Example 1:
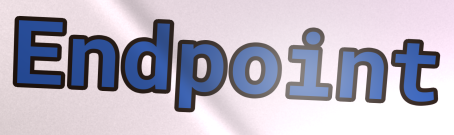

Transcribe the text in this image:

Endpoint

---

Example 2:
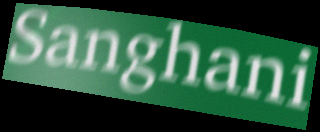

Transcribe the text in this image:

Sanghani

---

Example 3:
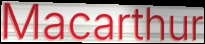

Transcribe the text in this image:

Macarthur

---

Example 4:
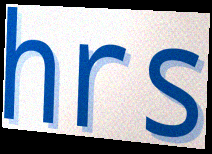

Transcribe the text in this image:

hrs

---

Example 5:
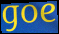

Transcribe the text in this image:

goe